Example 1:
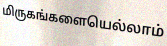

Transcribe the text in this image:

மிருகங்களையெல்லாம்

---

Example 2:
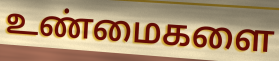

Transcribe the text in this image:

உண்மைகளை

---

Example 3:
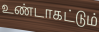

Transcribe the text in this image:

உண்டாகட்டும்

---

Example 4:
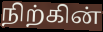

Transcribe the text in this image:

நிற்கின்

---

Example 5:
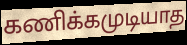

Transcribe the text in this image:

கணிக்கமுடியாத